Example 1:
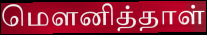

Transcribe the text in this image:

மௌனித்தாள்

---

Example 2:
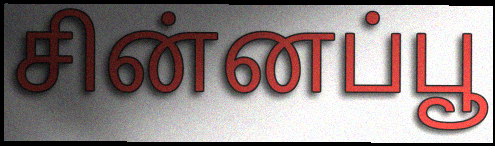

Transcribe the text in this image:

சின்னப்பூ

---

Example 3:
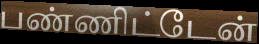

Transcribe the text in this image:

பண்ணிட்டேன்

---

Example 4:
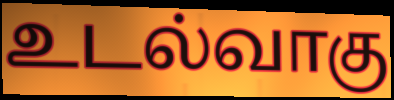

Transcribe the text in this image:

உடல்வாகு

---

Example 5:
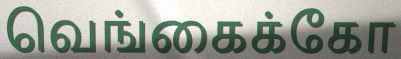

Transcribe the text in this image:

வெங்கைக்கோ